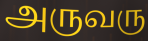
அருவரு